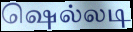
ஷெல்லடி